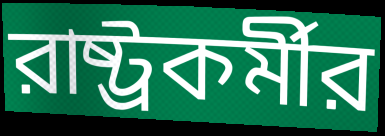
রাষ্ট্রকর্মীর